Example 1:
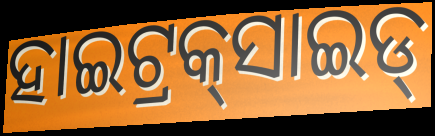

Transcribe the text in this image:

ହାଇଟ୍ରକ୍‌ସାଇଡ୍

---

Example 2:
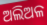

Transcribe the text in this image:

ଅଲିଅଳ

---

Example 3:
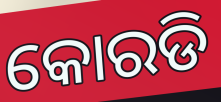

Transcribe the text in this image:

କୋରଡି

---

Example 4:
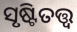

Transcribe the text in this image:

ସୃଷ୍ଟିତତ୍ତ୍ୱ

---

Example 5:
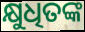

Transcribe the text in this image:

କ୍ଷୁଧିତଙ୍କ